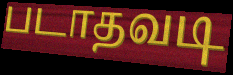
படாதவடி